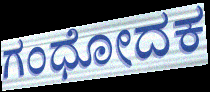
ಗಂಧೋದಕ